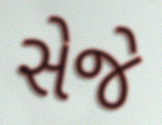
સેજે